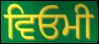
ਵਿਓਮੀ